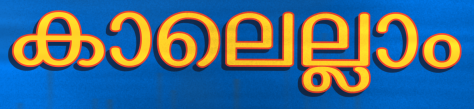
കാലെല്ലാം